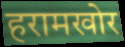
हरामखोर